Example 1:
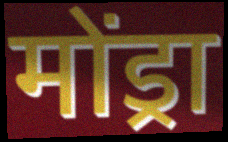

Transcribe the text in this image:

मोंड्रा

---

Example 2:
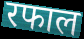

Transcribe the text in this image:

रफाल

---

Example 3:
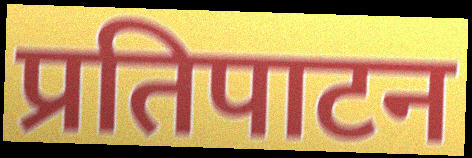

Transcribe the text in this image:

प्रतिपाटन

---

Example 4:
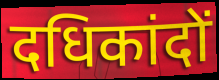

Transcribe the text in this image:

दधिकांदों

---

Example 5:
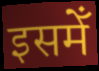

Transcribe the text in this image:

इसमेँ